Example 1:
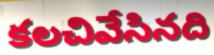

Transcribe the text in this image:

కలచివేసినది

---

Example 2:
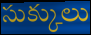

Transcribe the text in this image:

సుక్కులు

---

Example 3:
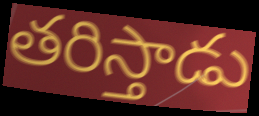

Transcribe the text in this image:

తరిస్తాడు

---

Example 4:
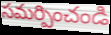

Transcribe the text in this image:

సమర్పించండి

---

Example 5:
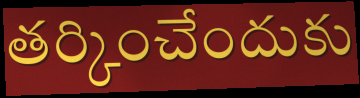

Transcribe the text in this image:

తర్కించేందుకు